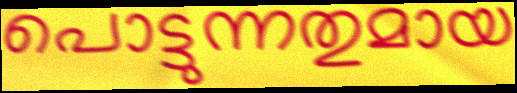
പൊട്ടുന്നതുമായ